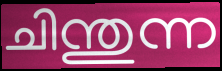
ചിന്തുന്ന